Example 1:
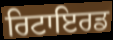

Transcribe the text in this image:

ਰਿਟਾਇਰਡ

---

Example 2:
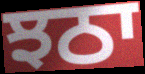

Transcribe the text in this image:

ਝਠਾ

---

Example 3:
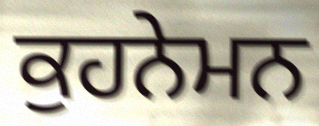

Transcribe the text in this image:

ਕੁਹਨੇਮਨ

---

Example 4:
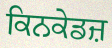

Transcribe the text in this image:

ਕਿਨਕੇਡਜ਼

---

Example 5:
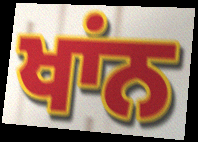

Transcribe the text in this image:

ਖਾਂਨ